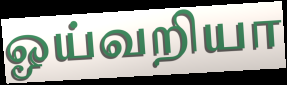
ஓய்வறியா